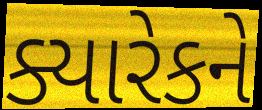
ક્યારેકને